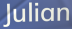
Julian